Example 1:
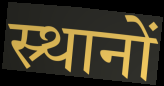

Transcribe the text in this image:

स्र्थानों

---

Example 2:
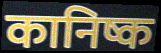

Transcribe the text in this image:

कानिष्क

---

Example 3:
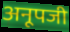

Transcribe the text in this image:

अनूपजी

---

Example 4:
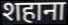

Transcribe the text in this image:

शहाना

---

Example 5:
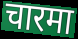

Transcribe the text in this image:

चारमा